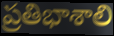
ప్రతిభాశాలి